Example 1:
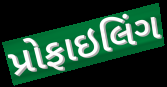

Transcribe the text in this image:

પ્રોફાઇલિંગ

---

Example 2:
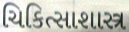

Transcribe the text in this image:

ચિકિત્સાશાસ્ત્ર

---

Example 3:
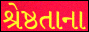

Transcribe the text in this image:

શ્રેષ્ઠતાના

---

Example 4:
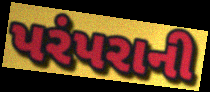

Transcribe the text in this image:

પરંપરાની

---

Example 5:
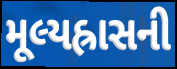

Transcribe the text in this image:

મૂલ્યહ્રાસની